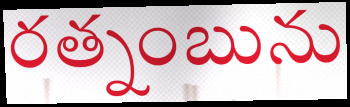
రత్నంబును